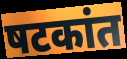
षटकांत